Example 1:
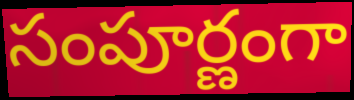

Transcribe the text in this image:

సంపూర్ణంగా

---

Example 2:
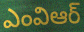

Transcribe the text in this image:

ఎంవిఆర్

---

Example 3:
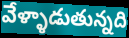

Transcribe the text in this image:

వేళ్ళాడుతున్నది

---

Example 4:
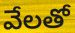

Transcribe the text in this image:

వేలతో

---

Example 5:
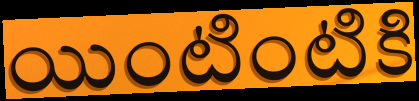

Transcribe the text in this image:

యింటింటికి